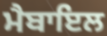
ਮੈਬਾਇਲ